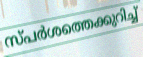
സ്പർശത്തെക്കുറിച്ച്